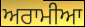
ਅਰਾਮੀਆ